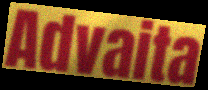
Advaita